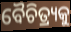
ବୈଚିତ୍ର୍ୟକୁ